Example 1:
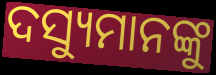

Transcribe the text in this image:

ଦସ୍ୟୁମାନଙ୍କୁ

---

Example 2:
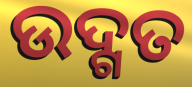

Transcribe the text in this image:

ଉଦ୍ଗତ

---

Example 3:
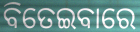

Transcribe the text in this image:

ବିତେଇବାରେ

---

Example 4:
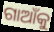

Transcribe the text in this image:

ଗାଆଁକୁ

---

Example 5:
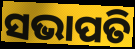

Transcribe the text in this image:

ସଭାପତି